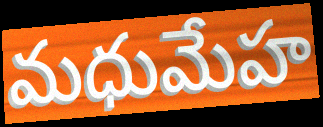
మధుమేహ